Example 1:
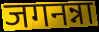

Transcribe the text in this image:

जगनन्ना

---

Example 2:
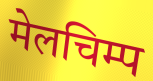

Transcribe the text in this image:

मेलचिम्प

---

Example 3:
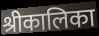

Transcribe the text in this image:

श्रीकालिका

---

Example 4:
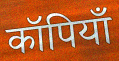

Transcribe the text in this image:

कॉपियाँ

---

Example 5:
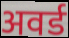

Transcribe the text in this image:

अवर्ड